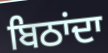
ਬਿਠਾਂਦਾ